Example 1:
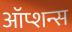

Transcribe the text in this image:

ऑप्शन्स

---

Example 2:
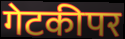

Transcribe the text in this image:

गेटकीपर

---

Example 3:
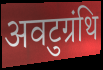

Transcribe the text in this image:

अवटुग्रंथि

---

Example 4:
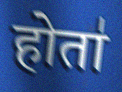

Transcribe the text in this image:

होता॑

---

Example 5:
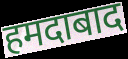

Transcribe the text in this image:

हमदाबाद